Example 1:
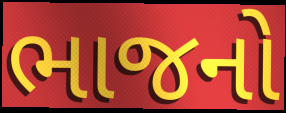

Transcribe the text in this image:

ભાજનો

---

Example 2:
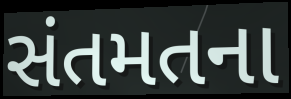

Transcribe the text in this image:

સંતમતના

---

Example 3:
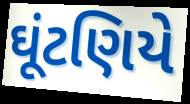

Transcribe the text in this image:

ઘૂંટણિયે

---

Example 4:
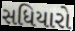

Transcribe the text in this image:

સધિયારો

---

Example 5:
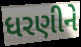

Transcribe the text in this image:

ધરણીને